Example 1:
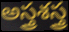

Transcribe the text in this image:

అస్త్రశస్త్ర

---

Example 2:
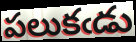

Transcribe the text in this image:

పలుకఁడు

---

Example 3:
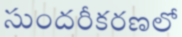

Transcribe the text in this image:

సుందరీకరణలో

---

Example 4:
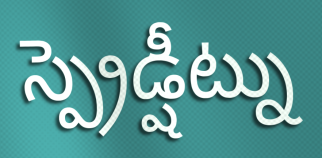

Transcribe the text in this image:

స్ప్రెడ్షీట్ను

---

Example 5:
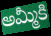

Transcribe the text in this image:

అమ్మీకి